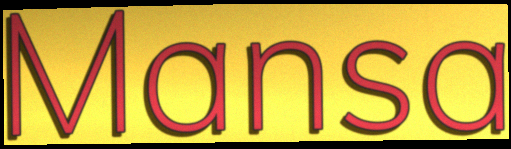
Mansa